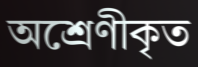
অশ্ৰেণীকৃত